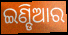
ଇଣ୍ଡିଆର